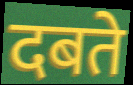
दबते